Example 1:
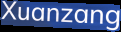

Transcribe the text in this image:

Xuanzang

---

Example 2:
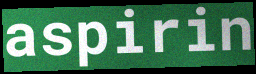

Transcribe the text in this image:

aspirin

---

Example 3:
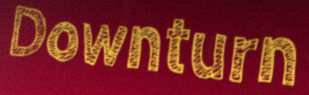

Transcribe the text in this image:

Downturn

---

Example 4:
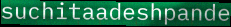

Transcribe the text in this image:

suchitaadeshpande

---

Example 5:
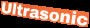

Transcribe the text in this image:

Ultrasonic